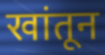
खांतून